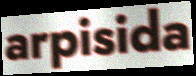
arpisida